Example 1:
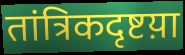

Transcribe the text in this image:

तांत्रिकदृष्टय़ा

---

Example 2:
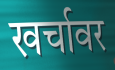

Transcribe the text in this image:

खर्चावर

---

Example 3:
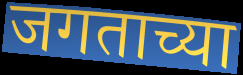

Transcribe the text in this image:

जगताच्या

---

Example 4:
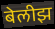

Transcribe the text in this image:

बेलीझ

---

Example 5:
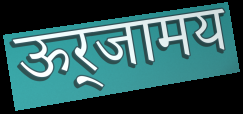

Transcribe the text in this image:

ऊर्जामय